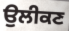
ਉਲੀਕਣ